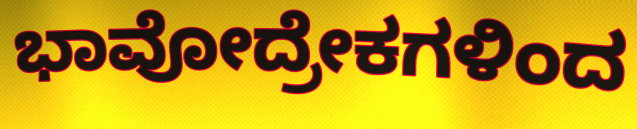
ಭಾವೋದ್ರೇಕಗಳಿಂದ